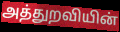
அத்துறவியின்